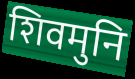
शिवमुनि